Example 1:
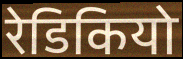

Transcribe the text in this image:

रेडिकियो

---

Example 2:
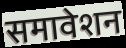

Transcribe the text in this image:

समावेशन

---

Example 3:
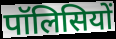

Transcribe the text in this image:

पॉलिसियों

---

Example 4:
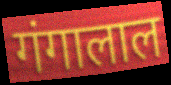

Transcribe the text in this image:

गंगालाल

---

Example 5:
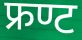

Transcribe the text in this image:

फ्रण्ट